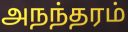
அநந்தரம்